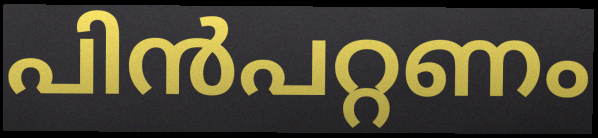
പിൻപറ്റണം